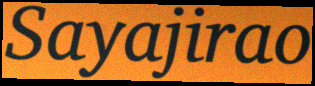
Sayajirao